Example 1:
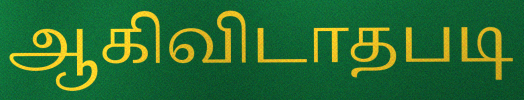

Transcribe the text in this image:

ஆகிவிடாதபடி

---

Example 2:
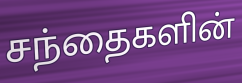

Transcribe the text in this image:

சந்தைகளின்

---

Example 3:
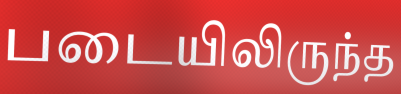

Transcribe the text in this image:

படையிலிருந்த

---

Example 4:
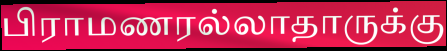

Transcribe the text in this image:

பிராமணரல்லாதாருக்கு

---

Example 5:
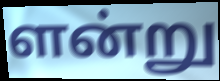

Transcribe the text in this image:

ளன்று